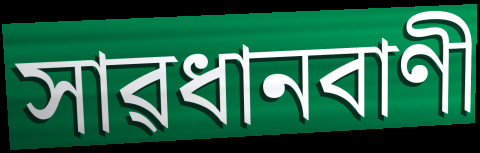
সাৱধানবাণী